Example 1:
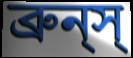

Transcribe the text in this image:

ব্রুন্‌স্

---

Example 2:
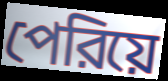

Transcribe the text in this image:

পেরিয়ে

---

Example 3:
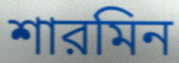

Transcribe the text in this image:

শারমিন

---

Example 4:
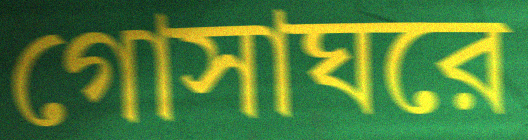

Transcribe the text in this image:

গোসাঘরে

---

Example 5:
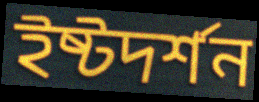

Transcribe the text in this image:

ইষ্টদর্শন